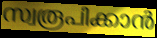
സ്വരൂപിക്കാൻ